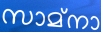
സാമ്നാ